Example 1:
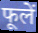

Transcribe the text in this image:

फूलें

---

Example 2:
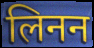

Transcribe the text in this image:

लिनन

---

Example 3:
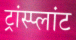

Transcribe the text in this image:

ट्रांस्प्लांट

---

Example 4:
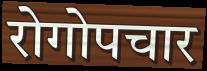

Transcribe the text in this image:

रोगोपचार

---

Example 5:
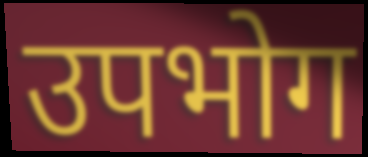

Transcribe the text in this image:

उपभोग